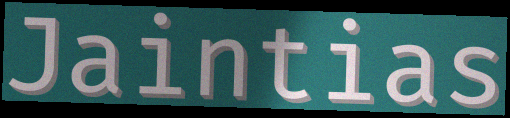
Jaintias